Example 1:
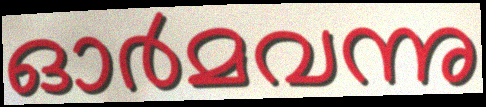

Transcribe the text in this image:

ഓർമവന്നു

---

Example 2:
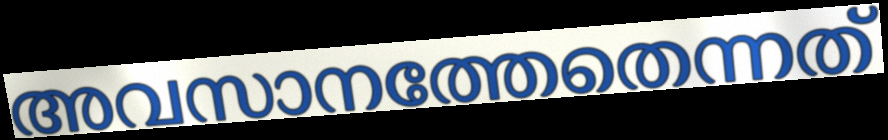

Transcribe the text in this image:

അവസാനത്തേതെന്നത്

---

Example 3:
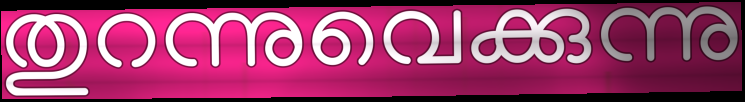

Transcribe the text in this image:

തുറന്നുവെക്കുന്നു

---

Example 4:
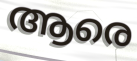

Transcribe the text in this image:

ആരെ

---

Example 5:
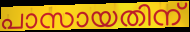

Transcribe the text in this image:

പാസായതിന്